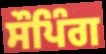
ਸੌਪਿੰਗ